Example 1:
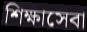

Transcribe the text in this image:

শিক্ষাসেবা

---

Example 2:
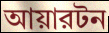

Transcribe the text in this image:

আয়ারটন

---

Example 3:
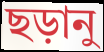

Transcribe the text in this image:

ছড়ানু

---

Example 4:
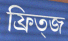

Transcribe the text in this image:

ফ্রিত্জ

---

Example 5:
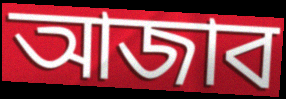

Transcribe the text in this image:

আজাব